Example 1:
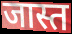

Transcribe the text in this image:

जास्त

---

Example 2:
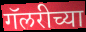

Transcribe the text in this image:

गॅलरीच्या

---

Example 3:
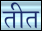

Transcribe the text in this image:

तीत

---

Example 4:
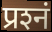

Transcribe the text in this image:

प्रश्‍नं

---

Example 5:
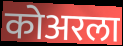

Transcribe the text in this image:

कोअरला